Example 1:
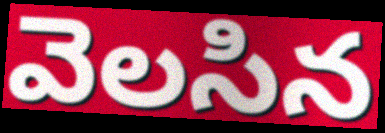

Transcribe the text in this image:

వెలసిన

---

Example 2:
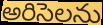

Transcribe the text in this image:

అరిసెలను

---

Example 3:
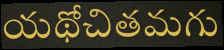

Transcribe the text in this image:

యథోచితమగు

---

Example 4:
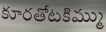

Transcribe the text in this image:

కూరతోటకిమ్ము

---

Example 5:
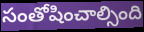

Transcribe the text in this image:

సంతోషించాల్సింది